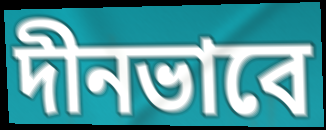
দীনভাবে